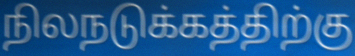
நிலநடுக்கத்திற்கு